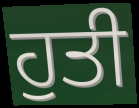
ਹੁਤੀ